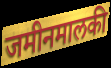
जमीनमालकी